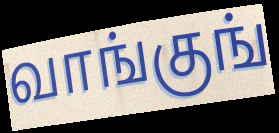
வாங்குங்